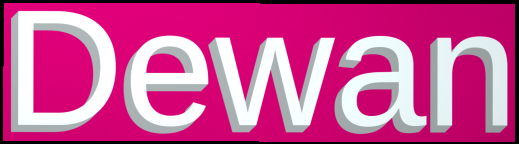
Dewan